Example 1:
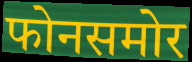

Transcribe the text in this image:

फोनसमोर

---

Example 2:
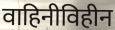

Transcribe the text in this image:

वाहिनीविहीन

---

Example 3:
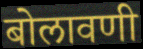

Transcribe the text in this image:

बोलावणी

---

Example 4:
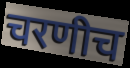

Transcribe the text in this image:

चरणीच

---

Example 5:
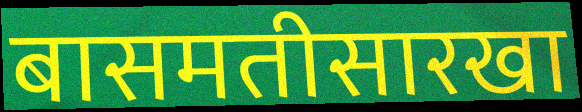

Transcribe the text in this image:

बासमतीसारखा